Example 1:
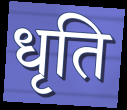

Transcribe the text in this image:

धृति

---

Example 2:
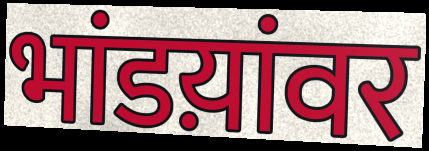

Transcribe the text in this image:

भांडय़ांवर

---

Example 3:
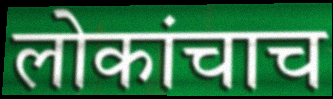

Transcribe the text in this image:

लोकांचाच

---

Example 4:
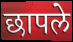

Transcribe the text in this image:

छापले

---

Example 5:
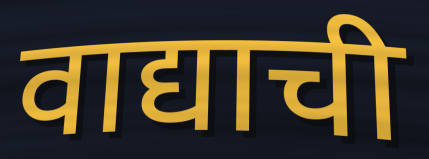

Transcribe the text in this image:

वाद्याची